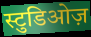
स्टुडिओज़